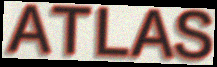
ATLAS